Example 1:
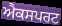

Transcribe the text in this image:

ਐਕਸਪਰਟ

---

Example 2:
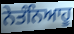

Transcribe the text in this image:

ਨੇਤੰਨਿਆਹੂ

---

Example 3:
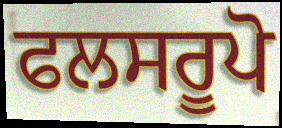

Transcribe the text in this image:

ਫਲਸਰੂਪੋ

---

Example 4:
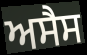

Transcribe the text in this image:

ਅਸੈਸ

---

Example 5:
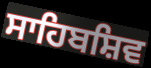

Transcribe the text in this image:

ਸਾਹਿਬਸ਼ਿਵ